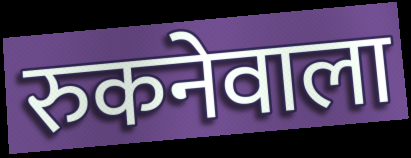
रुकनेवाला